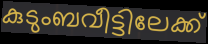
കുടുംബവീട്ടിലേക്ക്